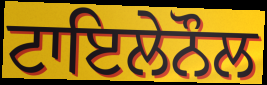
ਟਾਇਲੇਨੌਲ